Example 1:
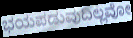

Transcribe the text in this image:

ಭಯಪಡುವುದಿಲ್ಲವೋ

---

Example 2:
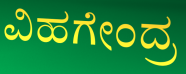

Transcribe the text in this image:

ವಿಹಗೇಂದ್ರ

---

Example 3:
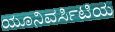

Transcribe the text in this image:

ಯೂನಿವರ್ಸಿಟಿಯ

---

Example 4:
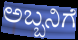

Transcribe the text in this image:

ಅಬ್ಬನಿಗೆ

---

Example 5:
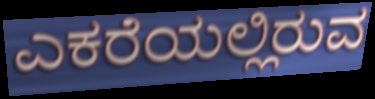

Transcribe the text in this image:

ಎಕರೆಯಲ್ಲಿರುವ